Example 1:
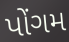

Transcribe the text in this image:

પોંગમ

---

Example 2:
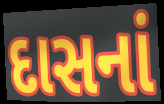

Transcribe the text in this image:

દાસનાં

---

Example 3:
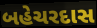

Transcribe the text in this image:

બહેચરદાસ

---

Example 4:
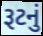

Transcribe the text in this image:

રૂટનું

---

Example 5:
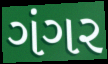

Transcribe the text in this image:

ગંગર